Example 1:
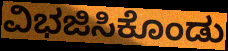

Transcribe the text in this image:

ವಿಭಜಿಸಿಕೊಂಡು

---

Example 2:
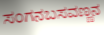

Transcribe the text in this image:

ಸಂಗನಬಸವಣ್ಣನ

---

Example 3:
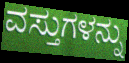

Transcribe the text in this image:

ವಸ್ತುಗಳನ್ನು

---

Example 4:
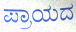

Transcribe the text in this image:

ಪ್ರಾಯದ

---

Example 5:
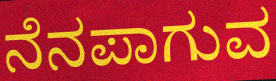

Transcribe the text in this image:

ನೆನಪಾಗುವ